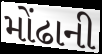
મોંઢાની